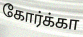
கோர்க்கா